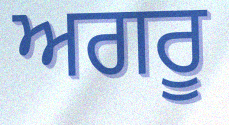
ਅਗਰੂ